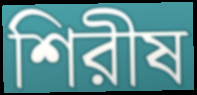
শিরীষ